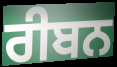
ਰੀਬਨ